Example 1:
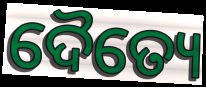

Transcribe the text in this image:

ଦୈତ୍ୟେ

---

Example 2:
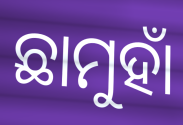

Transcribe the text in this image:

ଛାମୁହାଁ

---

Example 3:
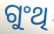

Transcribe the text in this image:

ଗୁଂଥି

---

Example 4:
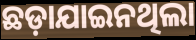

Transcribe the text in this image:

ଛଡ଼ାଯାଇନଥିଲା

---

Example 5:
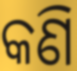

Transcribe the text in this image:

କଣି